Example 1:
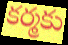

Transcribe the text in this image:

కర్మకు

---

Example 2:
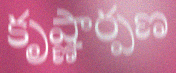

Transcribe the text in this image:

కృష్ణార్పణ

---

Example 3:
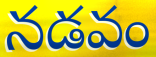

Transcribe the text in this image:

నడవం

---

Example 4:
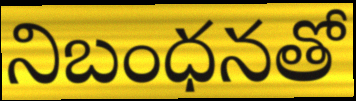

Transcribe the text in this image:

నిబంధనతో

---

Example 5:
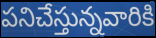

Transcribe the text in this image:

పనిచేస్తున్నవారికి